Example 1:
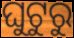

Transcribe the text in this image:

ଘୁଟୁରୁ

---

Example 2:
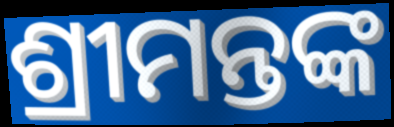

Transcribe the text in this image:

ଶ୍ରୀମନ୍ତଙ୍କ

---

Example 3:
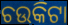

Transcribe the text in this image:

ଚଉକିଟା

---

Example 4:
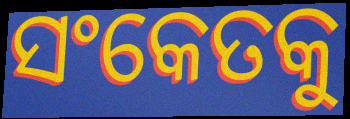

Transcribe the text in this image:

ସଂକେତକୁ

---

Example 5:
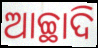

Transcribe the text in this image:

ଆଚ୍ଛାଦି